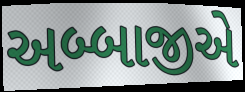
અબ્બાજીએ